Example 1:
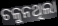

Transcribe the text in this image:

ଚଳୁନଥିଲା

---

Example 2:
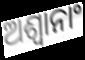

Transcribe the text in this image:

ଅଶ୍ଵାନାଂ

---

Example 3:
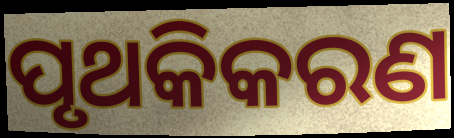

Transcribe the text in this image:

ପୃଥକିକରଣ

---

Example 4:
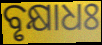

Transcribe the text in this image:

ବୃକ୍ଷାଧଃ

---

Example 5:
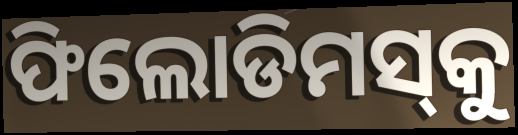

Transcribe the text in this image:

ଫିଲୋଡିମସ୍‌କୁ